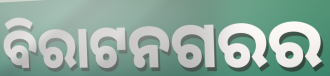
ବିରାଟନଗରର